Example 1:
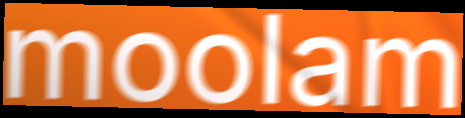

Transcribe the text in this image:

moolam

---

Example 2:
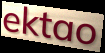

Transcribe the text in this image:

ektao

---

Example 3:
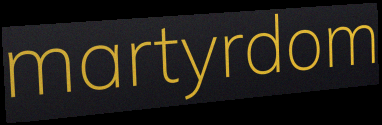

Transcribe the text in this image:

martyrdom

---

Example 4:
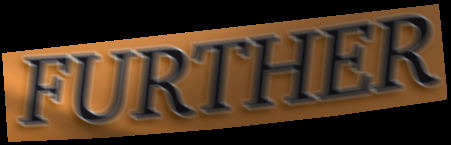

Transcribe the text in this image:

FURTHER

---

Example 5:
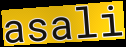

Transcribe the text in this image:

asali